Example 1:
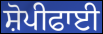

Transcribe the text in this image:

ਸ਼ੋਪੀਫਾਈ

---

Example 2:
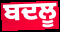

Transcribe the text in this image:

ਬਦਲੂ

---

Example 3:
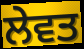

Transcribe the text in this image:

ਲੇਵਤ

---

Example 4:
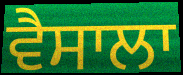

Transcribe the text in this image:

ਵੈਸਾਲਾ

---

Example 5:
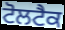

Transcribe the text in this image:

ਟੋਲਟੈਕ